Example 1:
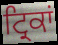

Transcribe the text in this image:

ਟ੍ਰਿਕਾਂ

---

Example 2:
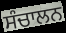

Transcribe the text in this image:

ਸੰਚਾਲਨ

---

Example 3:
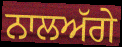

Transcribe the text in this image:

ਨਾਲਅੱਗੇ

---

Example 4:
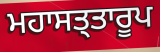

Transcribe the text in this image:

ਮਹਾਸਤ੍ਤਾਰੂਪ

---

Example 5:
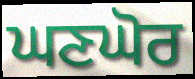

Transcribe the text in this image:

ਘਣਘੋਰ